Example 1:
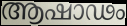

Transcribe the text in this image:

ആഷാഢം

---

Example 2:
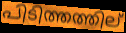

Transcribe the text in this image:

പിടിത്തത്തില്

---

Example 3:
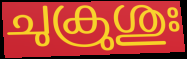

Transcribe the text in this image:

ചുക്രുശുഃ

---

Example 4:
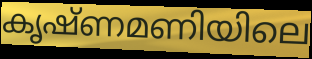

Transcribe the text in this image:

കൃഷ്ണമണിയിലെ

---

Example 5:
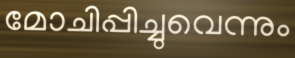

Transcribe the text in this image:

മോചിപ്പിച്ചുവെന്നും